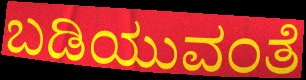
ಬಡಿಯುವಂತೆ